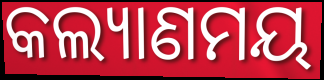
କଲ୍ୟାଣମୟ